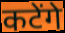
कटेंगे